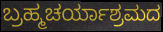
ಬ್ರಹ್ಮಚರ್ಯಾಶ್ರಮದ